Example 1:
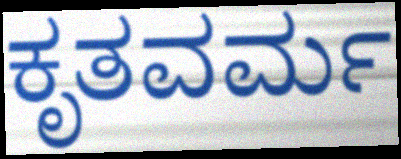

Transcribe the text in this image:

ಕೃತವರ್ಮ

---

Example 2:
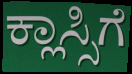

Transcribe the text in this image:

ಕ್ಲಾಸ್ಸಿಗೆ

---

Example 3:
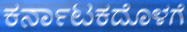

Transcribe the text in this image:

ಕರ್ನಾಟಕದೊಳಗೆ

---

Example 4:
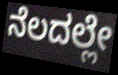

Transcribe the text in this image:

ನೆಲದಲ್ಲೇ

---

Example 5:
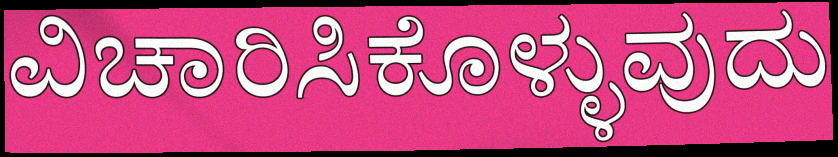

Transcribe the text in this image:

ವಿಚಾರಿಸಿಕೊಳ್ಳುವುದು